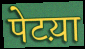
पेटय़ा